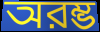
অরম্ভ